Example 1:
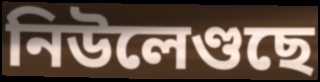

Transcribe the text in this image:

নিউলেণ্ডছে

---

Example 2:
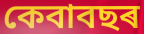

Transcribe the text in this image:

কেবাবছৰ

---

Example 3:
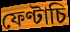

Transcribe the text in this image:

ফেণ্টাচি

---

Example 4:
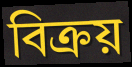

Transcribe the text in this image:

বিক্ৰয়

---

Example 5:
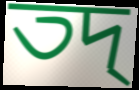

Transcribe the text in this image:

তদ্